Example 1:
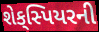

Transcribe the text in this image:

શેક્‌સ્પિયરની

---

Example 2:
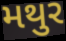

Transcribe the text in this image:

મથુર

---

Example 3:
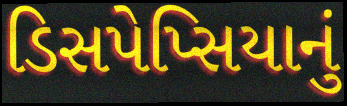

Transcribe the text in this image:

ડિસપેપ્સિયાનું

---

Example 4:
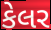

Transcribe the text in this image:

કેલર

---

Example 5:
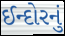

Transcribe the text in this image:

ઈન્દોરનું